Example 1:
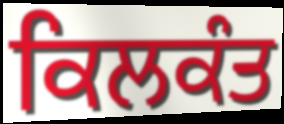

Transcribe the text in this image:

ਕਿਲਕੰਤ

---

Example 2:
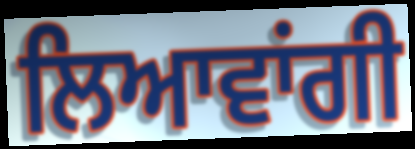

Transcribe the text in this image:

ਲਿਆਵਾਂਗੀ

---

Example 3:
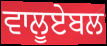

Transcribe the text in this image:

ਵਾਲੂਏਬਲ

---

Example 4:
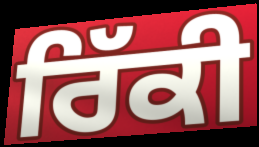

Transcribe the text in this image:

ਰਿੱਕੀ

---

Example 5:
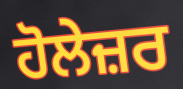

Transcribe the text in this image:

ਹੋਲੇਜ਼ਰ